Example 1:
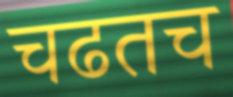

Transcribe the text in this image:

चढतच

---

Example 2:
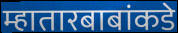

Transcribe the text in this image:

म्हातारबाबांकडे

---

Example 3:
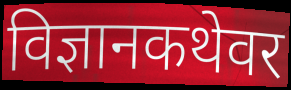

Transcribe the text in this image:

विज्ञानकथेवर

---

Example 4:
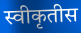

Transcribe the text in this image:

स्वीकृतीस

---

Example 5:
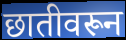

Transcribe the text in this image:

छातीवरून